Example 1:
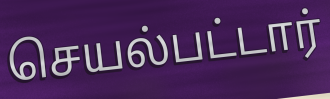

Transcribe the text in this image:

செயல்பட்டார்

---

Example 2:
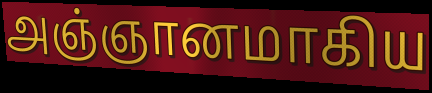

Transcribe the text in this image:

அஞ்ஞானமாகிய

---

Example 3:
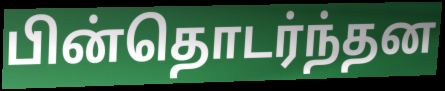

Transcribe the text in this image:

பின்தொடர்ந்தன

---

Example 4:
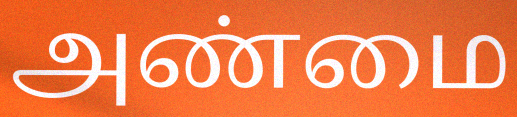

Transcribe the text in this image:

அண்மை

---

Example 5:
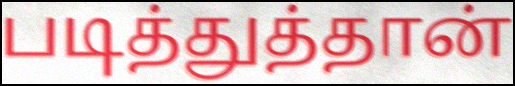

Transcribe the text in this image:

படித்துத்தான்